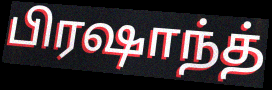
பிரஷாந்த்